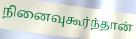
நினைவுகூர்ந்தான்